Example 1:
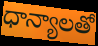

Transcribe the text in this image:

ధాన్యాలతో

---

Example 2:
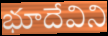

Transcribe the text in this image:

భూదేవిని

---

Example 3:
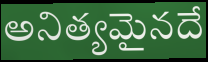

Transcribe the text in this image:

అనిత్యమైనదే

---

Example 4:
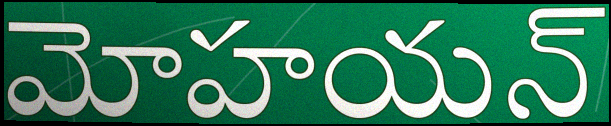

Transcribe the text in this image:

మోహయన్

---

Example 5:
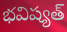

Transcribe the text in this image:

భవిష్యత్